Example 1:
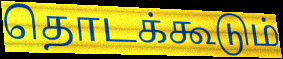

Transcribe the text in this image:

தொடக்கூடும்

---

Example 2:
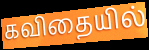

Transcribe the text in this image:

கவிதையில்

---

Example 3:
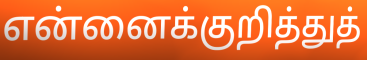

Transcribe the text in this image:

என்னைக்குறித்துத்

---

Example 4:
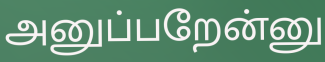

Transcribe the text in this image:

அனுப்பறேன்னு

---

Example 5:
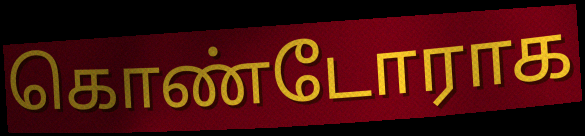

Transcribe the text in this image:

கொண்டோராக